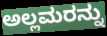
ಅಲ್ಲಮರನ್ನು